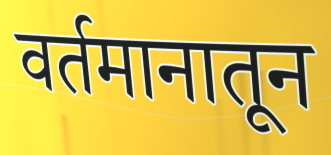
वर्तमानातून